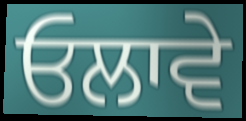
ਓਲਾਵੇ